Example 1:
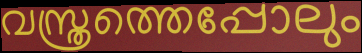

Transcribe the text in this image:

വസ്ത്രത്തെപ്പോലും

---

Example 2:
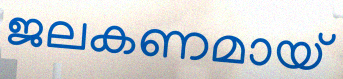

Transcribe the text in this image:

ജലകണമായ്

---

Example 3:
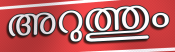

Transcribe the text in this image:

അറുത്തും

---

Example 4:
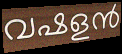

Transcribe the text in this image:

വഷളൻ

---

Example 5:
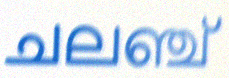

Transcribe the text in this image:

ചലഞ്ച്